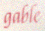
gable